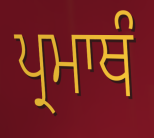
ਪ੍ਰਮਾਥੰ